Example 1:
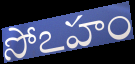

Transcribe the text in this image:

సోఽహం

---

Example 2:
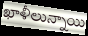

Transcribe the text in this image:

ఖాళీలున్నాయి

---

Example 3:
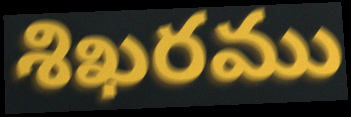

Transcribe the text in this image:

శిఖరము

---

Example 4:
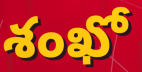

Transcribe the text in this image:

శంఖో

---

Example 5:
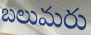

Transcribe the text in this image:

బలుమరు